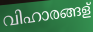
വിഹാരങ്ങള്